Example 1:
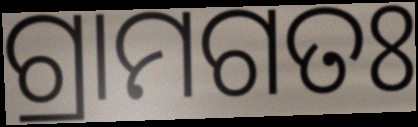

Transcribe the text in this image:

ଗ୍ରାମଗତଃ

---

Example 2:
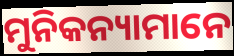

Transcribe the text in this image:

ମୁନିକନ୍ୟାମାନେ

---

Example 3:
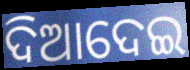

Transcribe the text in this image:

ଦିଆଦେଇ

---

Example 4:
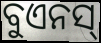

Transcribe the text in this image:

ବୁଏନସ୍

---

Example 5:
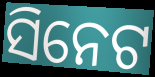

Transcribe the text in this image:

ସିନେଟ